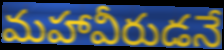
మహావీరుడనే